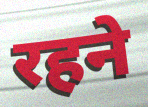
रहने